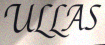
ULLAS